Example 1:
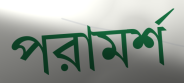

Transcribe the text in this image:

পরামর্শ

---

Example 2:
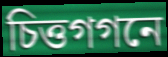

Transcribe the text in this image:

চিত্তগগনে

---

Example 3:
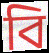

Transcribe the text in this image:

বি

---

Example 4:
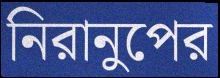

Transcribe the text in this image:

নিরানুপের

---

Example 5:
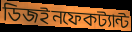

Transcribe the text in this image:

ডিজইনফেকট্যান্ট